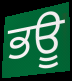
ਭਊ